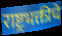
राष्ट्रभक्तीचे